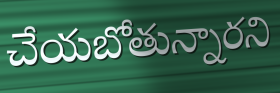
చేయబోతున్నారని